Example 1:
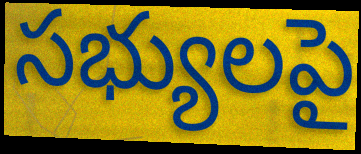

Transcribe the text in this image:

సభ్యులపై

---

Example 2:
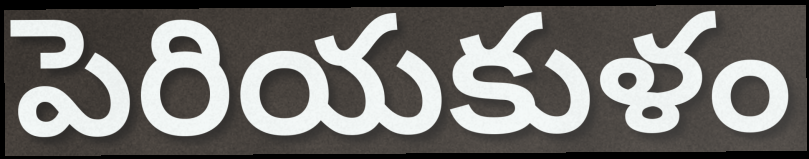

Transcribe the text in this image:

పెరియకుళం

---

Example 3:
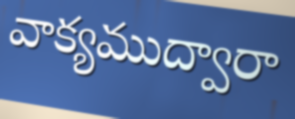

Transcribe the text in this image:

వాక్యముద్వారా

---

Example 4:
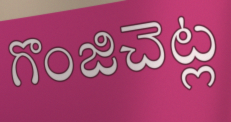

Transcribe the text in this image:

గొంజిచెట్ల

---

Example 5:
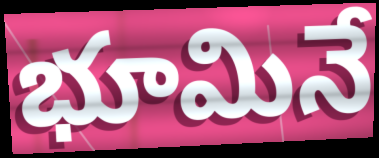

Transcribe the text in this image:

భూమినే